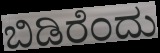
ಬಿಡಿರೆಂದು